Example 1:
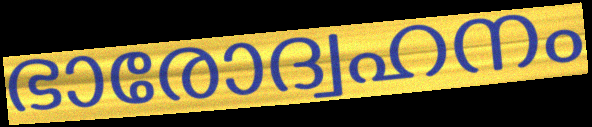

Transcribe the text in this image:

ഭാരോദ്വഹനം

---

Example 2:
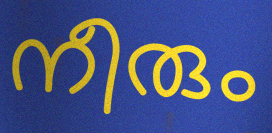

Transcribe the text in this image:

നീരും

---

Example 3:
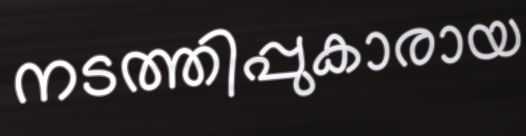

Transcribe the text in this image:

നടത്തിപ്പുകാരായ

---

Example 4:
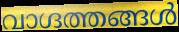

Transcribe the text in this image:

വാഗ്ദത്തങ്ങൾ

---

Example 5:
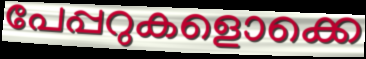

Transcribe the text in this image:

പേപ്പറുകളൊക്കെ